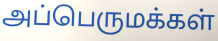
அப்பெருமக்கள்